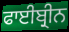
ਫਾਈਬ੍ਰੀਨ